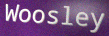
Woosley